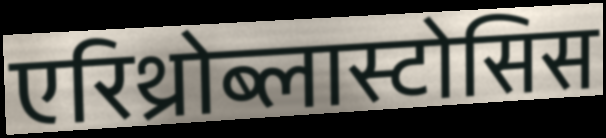
एरिथ्रोब्लास्टोसिस